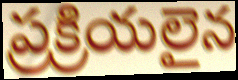
ప్రక్రియలైన